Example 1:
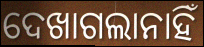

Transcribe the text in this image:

ଦେଖାଗଲାନାହିଁ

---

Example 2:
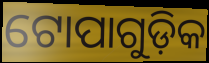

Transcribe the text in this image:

ଟୋପାଗୁଡ଼ିକ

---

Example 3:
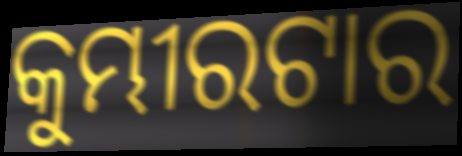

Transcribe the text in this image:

କୁମ୍ଭୀରଟାର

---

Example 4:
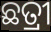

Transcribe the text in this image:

ଛତ୍ରୀ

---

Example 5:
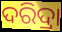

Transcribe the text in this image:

ଦରିଦ୍ରା